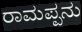
ರಾಮಪ್ಪನು